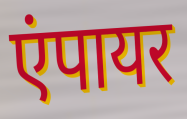
एंपायर